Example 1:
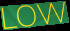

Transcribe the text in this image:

LOW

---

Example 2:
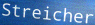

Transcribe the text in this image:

Streicher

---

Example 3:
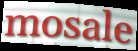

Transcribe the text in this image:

mosale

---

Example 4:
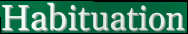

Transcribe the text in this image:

Habituation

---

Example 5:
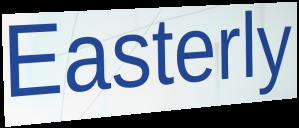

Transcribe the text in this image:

Easterly